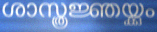
ശാസ്ത്രജ്ഞയ്ക്കും